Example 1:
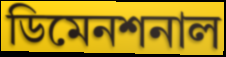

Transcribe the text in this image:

ডিমেনশনাল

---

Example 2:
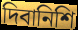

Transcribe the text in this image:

দিবানিশি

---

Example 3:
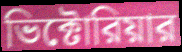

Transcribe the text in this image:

ভিক্টোরিয়ার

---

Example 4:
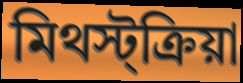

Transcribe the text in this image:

মিথস্ট্ক্রিয়া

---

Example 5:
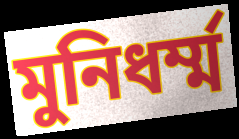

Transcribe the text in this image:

মুনিধর্ম্ম